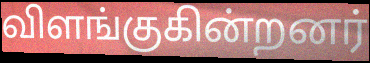
விளங்குகின்றனர்